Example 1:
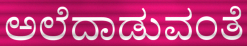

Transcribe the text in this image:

ಅಲೆದಾಡುವಂತೆ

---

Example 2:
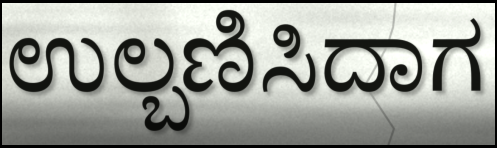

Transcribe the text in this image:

ಉಲ್ಬಣಿಸಿದಾಗ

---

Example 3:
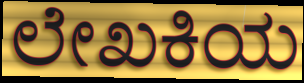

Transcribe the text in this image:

ಲೇಖಕಿಯ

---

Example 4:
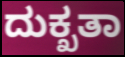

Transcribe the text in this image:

ದುಕ್ಖತಾ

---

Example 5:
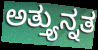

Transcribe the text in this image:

ಅತ್ತ್ಯುನ್ನತ